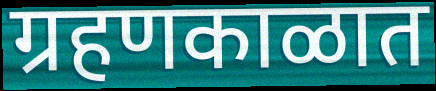
ग्रहणकाळात